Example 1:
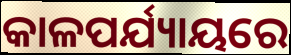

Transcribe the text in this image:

କାଳପର୍ଯ୍ୟାୟରେ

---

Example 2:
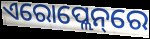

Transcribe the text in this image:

ଏରୋପ୍ଲେନ୍‌ରେ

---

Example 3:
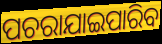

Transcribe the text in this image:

ପଚରାଯାଇପାରିବ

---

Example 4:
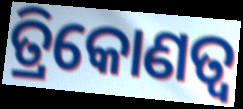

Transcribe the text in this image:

ତ୍ରିକୋଣତ୍ଵ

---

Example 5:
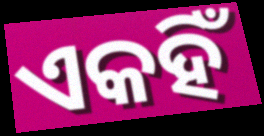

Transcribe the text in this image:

ଏକହିଁ